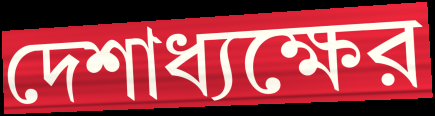
দেশাধ্যক্ষের